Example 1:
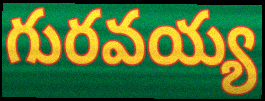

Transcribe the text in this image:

గురవయ్య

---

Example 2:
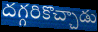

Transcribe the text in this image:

దగ్గరికొచ్చాడు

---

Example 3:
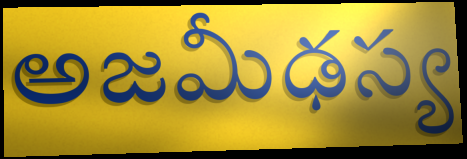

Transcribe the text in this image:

అజమీఢస్య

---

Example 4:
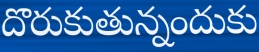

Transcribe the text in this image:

దొరుకుతున్నందుకు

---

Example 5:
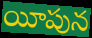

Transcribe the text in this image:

యీపున